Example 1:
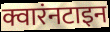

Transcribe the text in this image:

क्वारंनटाइन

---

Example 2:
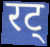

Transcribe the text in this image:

रट्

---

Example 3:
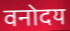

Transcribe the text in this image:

वनोदय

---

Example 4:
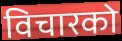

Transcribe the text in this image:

विचारको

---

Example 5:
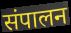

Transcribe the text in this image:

संपालन